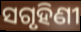
ସଗୃହିଣୀ